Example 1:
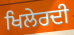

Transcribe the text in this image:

ਖਿਲੇਰਦੀ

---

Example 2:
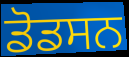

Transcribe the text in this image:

ਡੋਡਸਨ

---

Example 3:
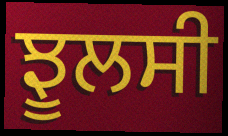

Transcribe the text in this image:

ਝੂਲਸੀ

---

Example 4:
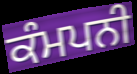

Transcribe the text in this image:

ਕੰਮਪਨੀ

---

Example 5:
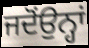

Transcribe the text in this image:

ਜਦੋਂਉਨ੍ਹਾਂ